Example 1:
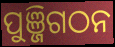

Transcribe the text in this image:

ପୁଞ୍ଜିଗଠନ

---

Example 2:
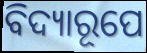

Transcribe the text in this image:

ବିଦ୍ୟାରୂପେ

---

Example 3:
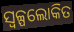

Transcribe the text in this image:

ସ୍ୱଳ୍ପଲୋକିତ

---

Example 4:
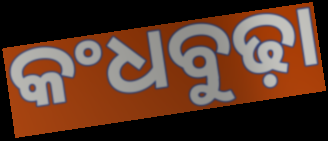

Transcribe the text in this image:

କଂଧବୁଢ଼ା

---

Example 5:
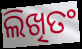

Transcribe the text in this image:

ଲିଖିତଂ